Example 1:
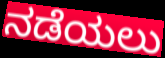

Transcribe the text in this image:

ನಡೆಯಲು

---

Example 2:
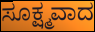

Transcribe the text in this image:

ಸೂಕ್ಷ್ಮವಾದ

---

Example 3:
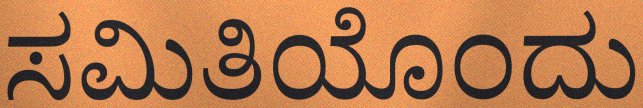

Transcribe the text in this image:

ಸಮಿತಿಯೊಂದು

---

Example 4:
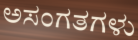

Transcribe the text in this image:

ಅಸಂಗತಗಳು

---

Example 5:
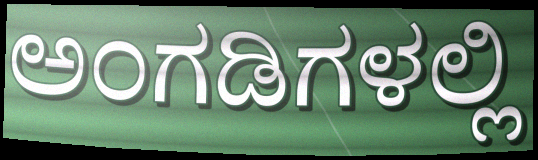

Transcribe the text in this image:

ಅಂಗಡಿಗಳಲ್ಲಿ